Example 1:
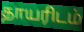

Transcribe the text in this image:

தாயரிடம்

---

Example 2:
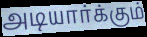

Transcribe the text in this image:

அடியார்க்கும்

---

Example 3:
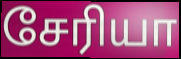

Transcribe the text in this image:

சேரியா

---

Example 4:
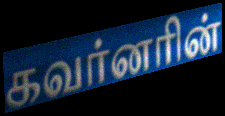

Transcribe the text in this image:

கவர்னரின்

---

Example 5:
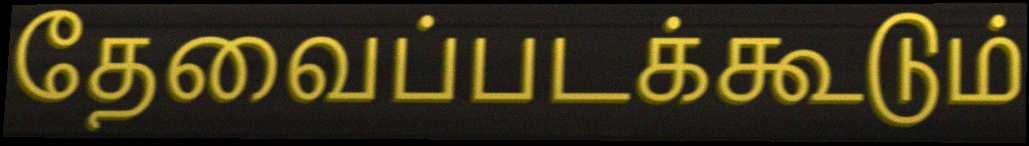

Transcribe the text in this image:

தேவைப்படக்கூடும்